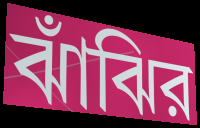
ঝাঁঝির